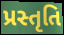
પ્રસ્તૃતિ